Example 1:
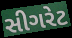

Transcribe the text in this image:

સીગરેટ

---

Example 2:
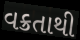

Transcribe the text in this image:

વક્રતાથી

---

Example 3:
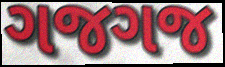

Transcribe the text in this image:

ગજગજ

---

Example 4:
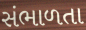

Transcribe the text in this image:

સંભાળતા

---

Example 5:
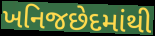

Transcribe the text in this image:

ખનિજછેદમાંથી